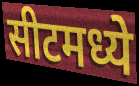
सीटमध्ये